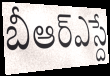
బీఆర్ఎస్దే